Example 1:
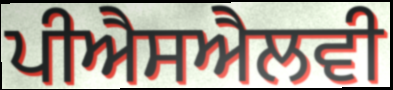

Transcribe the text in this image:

ਪੀਐਸਐਲਵੀ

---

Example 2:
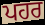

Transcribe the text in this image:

ਪਹਰ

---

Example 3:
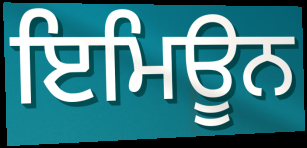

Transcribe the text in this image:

ਇਮਿਊਨ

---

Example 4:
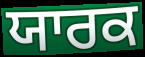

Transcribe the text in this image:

ਯਾਰਕ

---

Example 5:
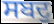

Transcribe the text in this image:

ਸਬਦੁ